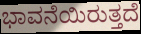
ಭಾವನೆಯಿರುತ್ತದೆ